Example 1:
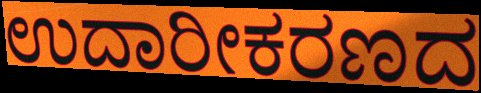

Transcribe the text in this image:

ಉದಾರೀಕರಣದ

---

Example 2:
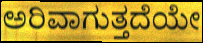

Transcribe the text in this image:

ಅರಿವಾಗುತ್ತದೆಯೇ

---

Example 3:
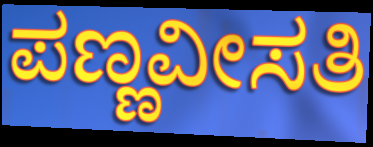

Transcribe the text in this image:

ಪಣ್ಣವೀಸತಿ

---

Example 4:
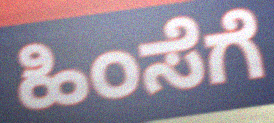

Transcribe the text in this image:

ಹಿಂಸೆಗೆ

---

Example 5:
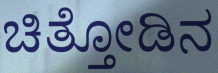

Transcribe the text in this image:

ಚಿತ್ತೋಡಿನ